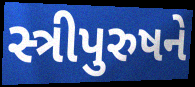
સ્ત્રીપુરુષને